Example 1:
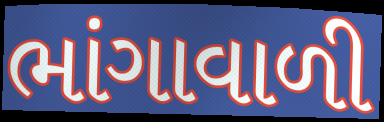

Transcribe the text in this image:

ભાંગાવાળી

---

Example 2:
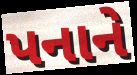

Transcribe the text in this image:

પનાને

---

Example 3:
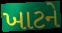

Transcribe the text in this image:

ખાટને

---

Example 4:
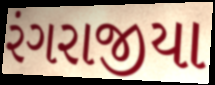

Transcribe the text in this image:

રંગરાજીયા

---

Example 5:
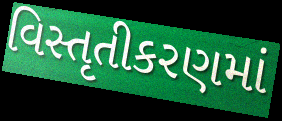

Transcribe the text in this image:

વિસ્તૃતીકરણમાં